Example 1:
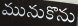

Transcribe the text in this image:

మునుకొను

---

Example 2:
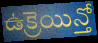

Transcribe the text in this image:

ఉక్రెయిన్తో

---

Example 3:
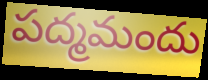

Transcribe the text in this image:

పద్మమందు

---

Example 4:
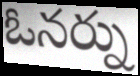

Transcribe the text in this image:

ఓనర్ను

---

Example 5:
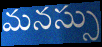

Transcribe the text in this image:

మనస్సు